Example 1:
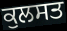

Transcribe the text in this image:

ਕੁਲਸਤ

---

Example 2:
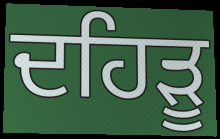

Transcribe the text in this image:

ਦਹਿੜੂ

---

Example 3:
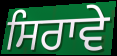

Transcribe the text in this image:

ਸਿਰਾਵੇ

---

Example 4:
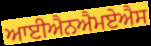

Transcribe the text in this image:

ਆਈਐਨਐਮਏਐਸ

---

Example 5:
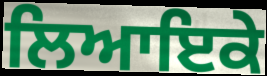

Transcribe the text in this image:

ਲਿਆਇਕੇ